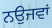
ਨਉਜਵਾਂ